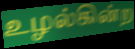
உழல்கின்ற